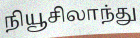
நியூசிலாந்து